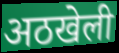
अठखेली